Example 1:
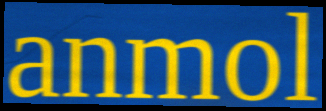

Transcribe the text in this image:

anmol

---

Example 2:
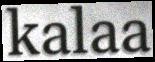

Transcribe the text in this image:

kalaa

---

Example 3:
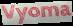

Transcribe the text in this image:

Vyoma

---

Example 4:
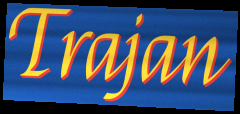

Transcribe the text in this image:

Trajan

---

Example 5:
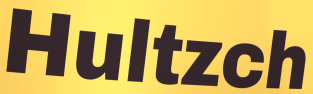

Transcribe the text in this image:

Hultzch